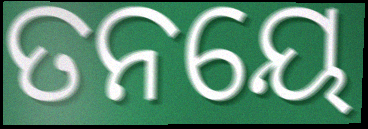
ତନୟେ